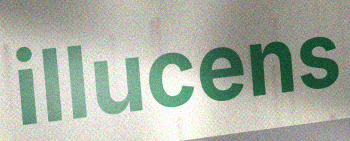
illucens